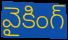
వైకింగ్